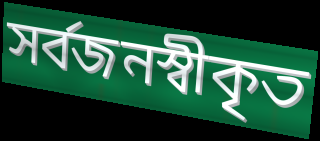
সর্বজনস্বীকৃত